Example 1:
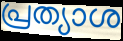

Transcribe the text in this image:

പ്രത്യാശ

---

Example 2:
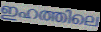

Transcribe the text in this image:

ഇഹത്തിലെ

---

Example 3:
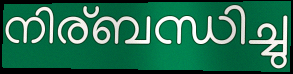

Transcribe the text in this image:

നിര്ബന്ധിച്ചു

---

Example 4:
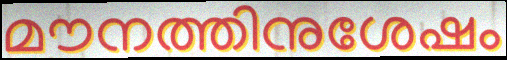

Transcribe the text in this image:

മൗനത്തിനുശേഷം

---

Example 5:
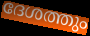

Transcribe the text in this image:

ദേശത്തും